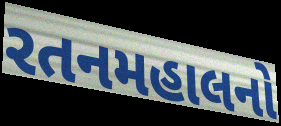
રતનમહાલનો